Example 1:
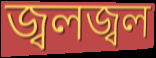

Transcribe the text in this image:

জ্বলজ্বল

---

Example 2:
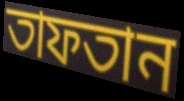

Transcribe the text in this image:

তাফতান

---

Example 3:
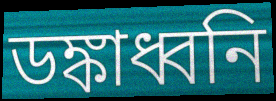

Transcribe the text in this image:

ডঙ্কাধ্বনি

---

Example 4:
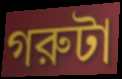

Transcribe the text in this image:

গরুটা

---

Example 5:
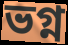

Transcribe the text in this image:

ভগ্ন